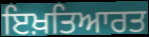
ਇਖ਼ਤਿਆਰਤ